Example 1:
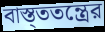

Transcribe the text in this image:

বাস্ত্ততন্ত্রের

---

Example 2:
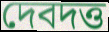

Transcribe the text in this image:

দেবদত্ত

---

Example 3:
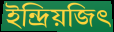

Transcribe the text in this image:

ইন্দ্রিয়জিৎ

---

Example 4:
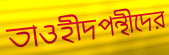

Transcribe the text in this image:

তাওহীদপন্থীদের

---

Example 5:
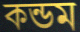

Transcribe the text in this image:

কন্ডম